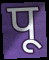
पू